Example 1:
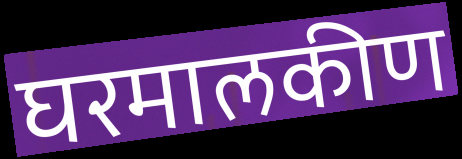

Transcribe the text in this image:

घरमालकीण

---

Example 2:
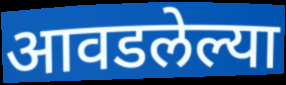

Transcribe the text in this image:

आवडलेल्या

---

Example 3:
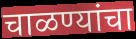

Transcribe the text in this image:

चाळण्यांचा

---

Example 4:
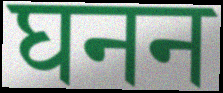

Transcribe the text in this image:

घनन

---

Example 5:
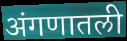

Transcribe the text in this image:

अंगणातली